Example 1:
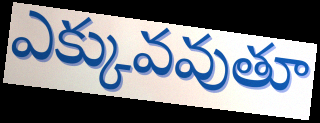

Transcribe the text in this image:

ఎక్కువవుతూ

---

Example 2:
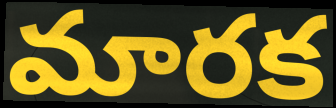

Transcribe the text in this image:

మారక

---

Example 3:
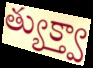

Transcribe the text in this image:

త్యుక్త్వా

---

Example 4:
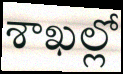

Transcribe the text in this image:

శాఖల్లో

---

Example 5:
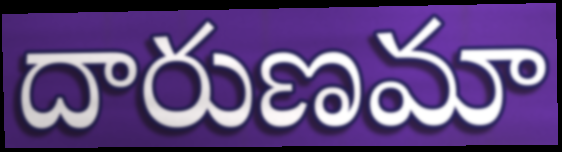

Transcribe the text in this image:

దారుణమా